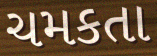
ચમકતા